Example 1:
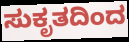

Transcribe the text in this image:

ಸುಕೃತದಿಂದ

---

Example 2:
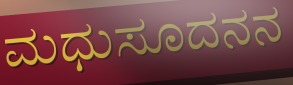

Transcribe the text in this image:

ಮಧುಸೂದನನ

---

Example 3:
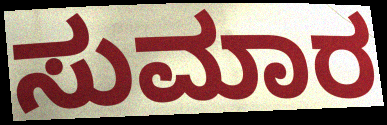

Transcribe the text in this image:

ಸುಮಾರ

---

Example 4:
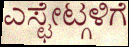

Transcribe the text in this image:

ಎಸ್ಟೇಟ್ಗಳಿಗೆ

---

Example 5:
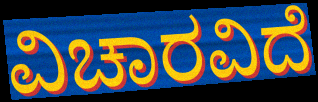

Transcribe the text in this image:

ವಿಚಾರವಿದೆ